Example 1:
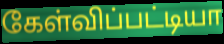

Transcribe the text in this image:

கேள்விப்பட்டியா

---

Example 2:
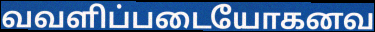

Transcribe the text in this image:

வவளிப்படையோகனவ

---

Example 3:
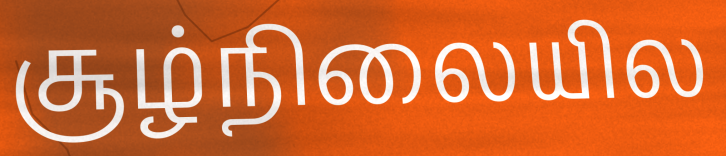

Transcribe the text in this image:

சூழ்நிலையில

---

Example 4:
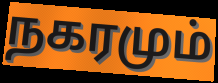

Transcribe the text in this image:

நகரமும்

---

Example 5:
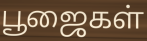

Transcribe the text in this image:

பூஜைகள்